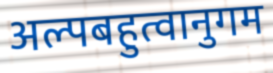
अल्पबहुत्वानुगम